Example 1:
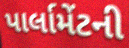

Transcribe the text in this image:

પાર્લામેંટની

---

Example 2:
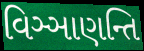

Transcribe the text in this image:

વિઞ્ઞાણન્તિ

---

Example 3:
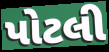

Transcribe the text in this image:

પોટલી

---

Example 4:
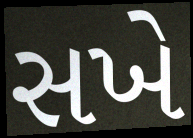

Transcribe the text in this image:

સખે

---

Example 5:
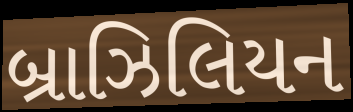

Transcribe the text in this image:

બ્રાઝિલિયન